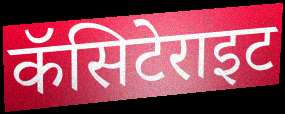
कॅसिटेराइट